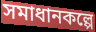
সমাধানকল্পে